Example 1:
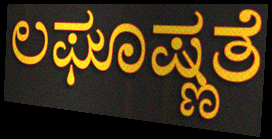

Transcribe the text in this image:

ಲಘೂಷ್ಣತೆ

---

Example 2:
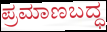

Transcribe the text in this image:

ಪ್ರಮಾಣಬದ್ಧ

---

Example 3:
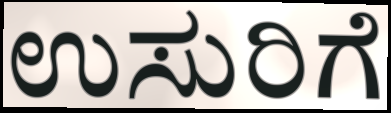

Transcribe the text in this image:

ಉಸುರಿಗೆ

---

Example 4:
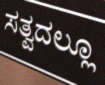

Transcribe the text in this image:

ಸತ್ವದಲ್ಲೂ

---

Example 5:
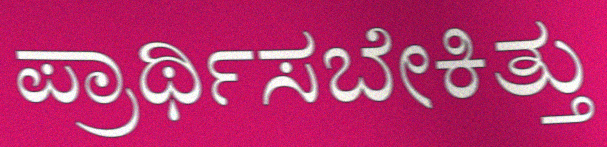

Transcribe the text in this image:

ಪ್ರಾರ್ಥಿಸಬೇಕಿತ್ತು